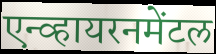
एन्व्हायरनमेंटल